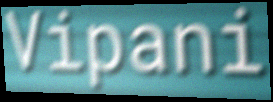
Vipani